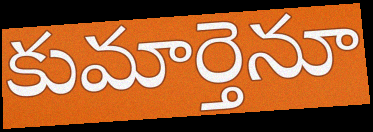
కుమార్తెనూ